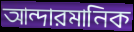
আন্দারমানিক